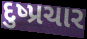
દુષ્પ્રચાર